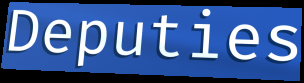
Deputies